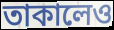
তাকালেও